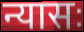
न्यासः